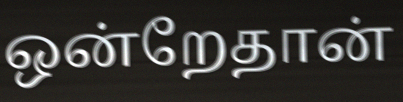
ஒன்றேதான்